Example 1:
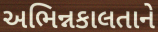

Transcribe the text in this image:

અભિન્નકાલતાને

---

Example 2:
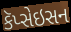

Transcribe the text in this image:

કૅપ્સેઇસન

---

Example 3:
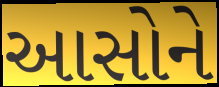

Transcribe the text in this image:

આસોને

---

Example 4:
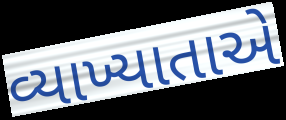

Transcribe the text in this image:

વ્યાખ્યાતાએ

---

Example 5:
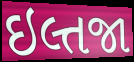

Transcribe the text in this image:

ઇલ્તજા